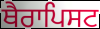
ਥੈਰਾਪਿਸਟ